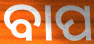
ବାପ